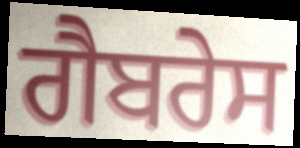
ਗੈਬਰੇਸ